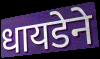
धायडेने